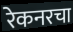
रेकनरचा